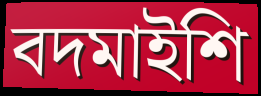
বদমাইশি